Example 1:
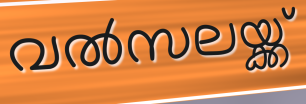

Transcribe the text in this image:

വൽസലയ്ക്ക്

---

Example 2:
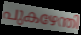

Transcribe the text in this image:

പുകഴേന്തി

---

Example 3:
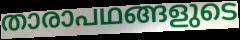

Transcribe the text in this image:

താരാപഥങ്ങളുടെ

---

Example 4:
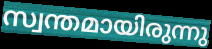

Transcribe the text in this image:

സ്വന്തമായിരുന്നു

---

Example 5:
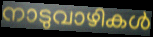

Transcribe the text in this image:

നാടുവാഴികൾ